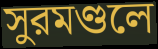
সুরমণ্ডলে